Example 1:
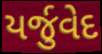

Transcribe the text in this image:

યર્જુવેદ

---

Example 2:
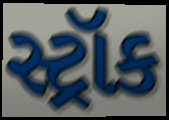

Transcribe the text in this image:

સ્ટ્રૉક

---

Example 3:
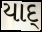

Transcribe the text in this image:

યાદ્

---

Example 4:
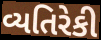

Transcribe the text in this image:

વ્યતિરેકી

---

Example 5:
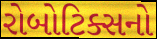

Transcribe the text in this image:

રોબોટિક્સનો